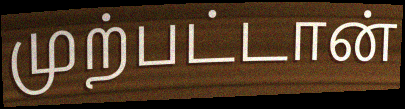
முற்பட்டான்